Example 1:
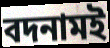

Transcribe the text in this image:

বদনামই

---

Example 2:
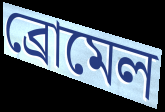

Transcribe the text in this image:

ব্রোমেল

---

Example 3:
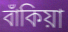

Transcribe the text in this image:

বাঁকিয়া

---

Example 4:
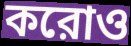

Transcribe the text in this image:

করোও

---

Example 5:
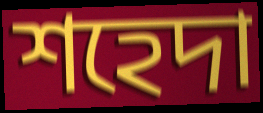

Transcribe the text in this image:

শহেদা